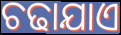
ଚଢାଯାଏ